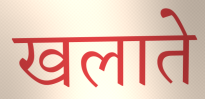
खलाते